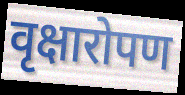
वृक्षारोपण